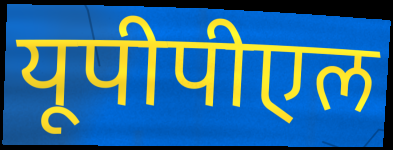
यूपीपीएल